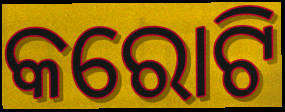
କରୋଟି